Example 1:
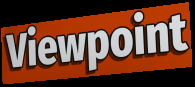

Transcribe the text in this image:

Viewpoint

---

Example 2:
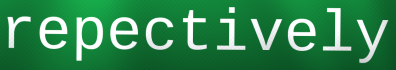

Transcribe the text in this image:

repectively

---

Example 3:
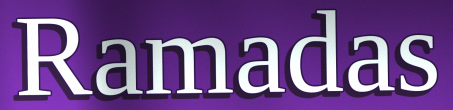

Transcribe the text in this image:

Ramadas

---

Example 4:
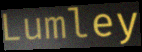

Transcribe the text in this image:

Lumley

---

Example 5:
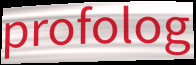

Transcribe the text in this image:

profolog